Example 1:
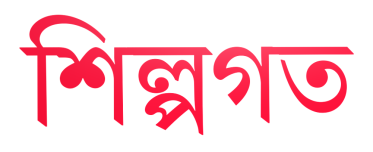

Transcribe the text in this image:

শিল্পগত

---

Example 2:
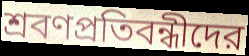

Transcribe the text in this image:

শ্রবণপ্রতিবন্ধীদের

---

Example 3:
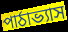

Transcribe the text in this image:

পাঠাভ্যাস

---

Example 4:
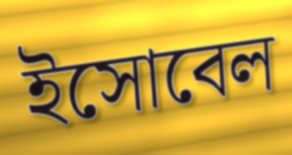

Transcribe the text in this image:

ইসোবেল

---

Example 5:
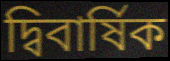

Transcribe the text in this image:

দ্বিবার্ষিক